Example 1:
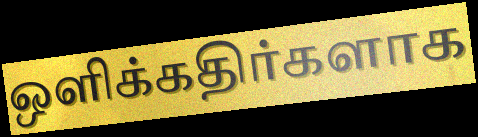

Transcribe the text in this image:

ஒளிக்கதிர்களாக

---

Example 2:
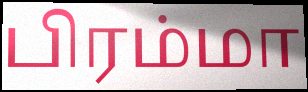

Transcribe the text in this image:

பிரம்மா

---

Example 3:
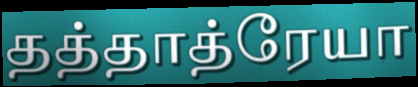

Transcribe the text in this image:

தத்தாத்ரேயா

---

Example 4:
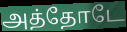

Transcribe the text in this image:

அத்தோடே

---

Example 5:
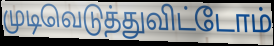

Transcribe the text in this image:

முடிவெடுத்துவிட்டோம்